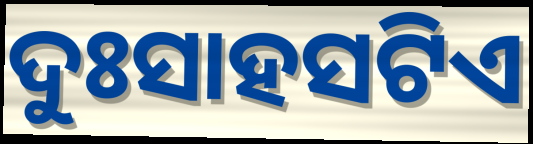
ଦୁଃସାହସଟିଏ